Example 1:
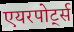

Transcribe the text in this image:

एयरपोर्ट्स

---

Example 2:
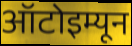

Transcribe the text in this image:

ऑटोइम्‍यून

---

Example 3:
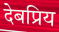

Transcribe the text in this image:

देबप्रिय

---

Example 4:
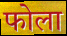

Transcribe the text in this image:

फोला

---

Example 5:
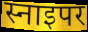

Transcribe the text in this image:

स्नाइपर